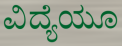
ವಿದ್ಯೆಯೂ